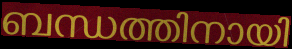
ബന്ധത്തിനായി